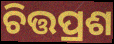
ଚିତ୍ତପ୍ରଶ